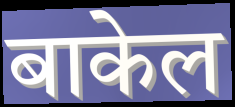
बाकेल